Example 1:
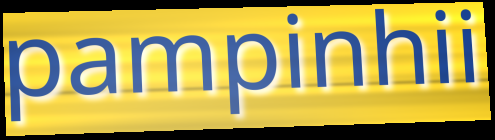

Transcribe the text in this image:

pampinhii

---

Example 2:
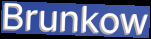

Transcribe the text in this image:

Brunkow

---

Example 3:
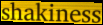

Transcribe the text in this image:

shakiness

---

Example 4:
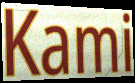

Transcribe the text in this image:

Kami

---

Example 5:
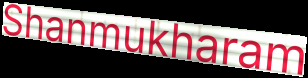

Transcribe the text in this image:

Shanmukharam